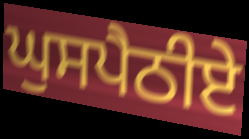
ਘੁਸਪੈਠੀਏ